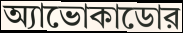
অ্যাভোকাডোর